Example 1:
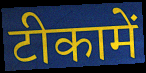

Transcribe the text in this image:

टीकामें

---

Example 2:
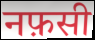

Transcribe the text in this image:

नफ़सी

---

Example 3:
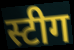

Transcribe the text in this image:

स्टीग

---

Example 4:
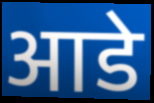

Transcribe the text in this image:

आडे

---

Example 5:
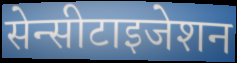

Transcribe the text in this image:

सेन्सीटाइजेशन